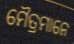
ମୈତ୍ରମାନେ